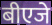
बीएजे